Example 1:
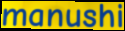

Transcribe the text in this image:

manushi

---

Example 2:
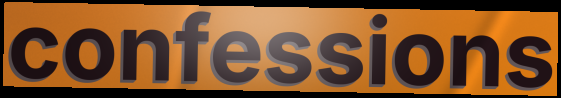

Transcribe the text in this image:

confessions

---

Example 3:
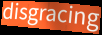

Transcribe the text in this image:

disgracing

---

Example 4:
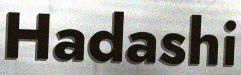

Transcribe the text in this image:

Hadashi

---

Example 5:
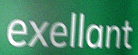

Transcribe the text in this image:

exellant